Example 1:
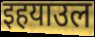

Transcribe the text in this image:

इहयाउल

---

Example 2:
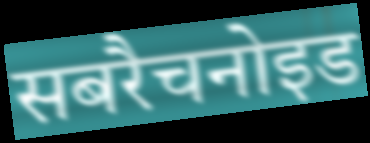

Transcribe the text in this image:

सबरैचनोइड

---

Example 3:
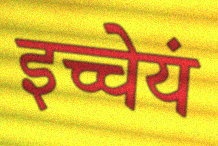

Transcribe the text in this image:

इच्चेयं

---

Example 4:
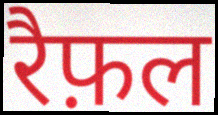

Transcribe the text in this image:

रैफ़ल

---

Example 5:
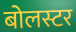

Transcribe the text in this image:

बोलस्टर